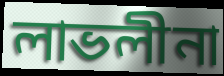
লাভলীনা